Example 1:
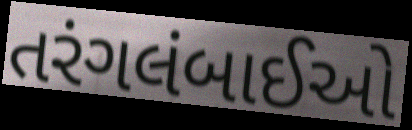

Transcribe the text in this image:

તરંગલંબાઈઓ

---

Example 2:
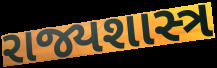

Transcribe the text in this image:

રાજ્યશાસ્ત્ર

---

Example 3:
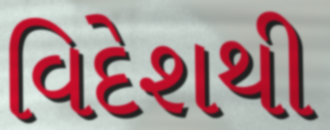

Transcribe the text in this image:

વિદેશથી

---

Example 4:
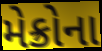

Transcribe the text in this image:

મેક્રોના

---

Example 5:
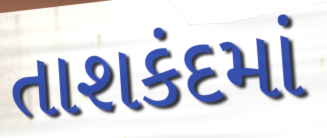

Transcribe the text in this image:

તાશકંદમાં